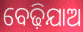
ବେଢ଼ିଯାଅ